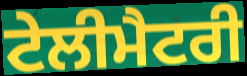
ਟੇਲੀਮੈਟਰੀ